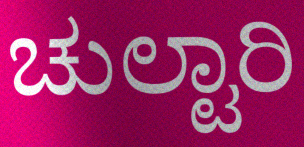
ಚುಲ್ಟಾರಿ